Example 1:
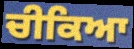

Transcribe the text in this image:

ਚੀਕਿਆ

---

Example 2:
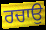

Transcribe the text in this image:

ਰਚਾਉ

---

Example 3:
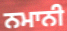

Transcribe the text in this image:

ਨਮਾਨੀ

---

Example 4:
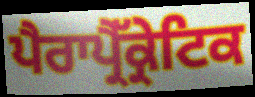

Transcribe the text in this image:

ਪੈਰਾਪ੍ਰੈੱਕ੍ਰੇਟਿਕ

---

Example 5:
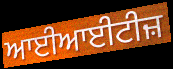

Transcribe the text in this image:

ਆਈਆਈਟੀਜ਼